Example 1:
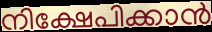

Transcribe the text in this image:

നിക്ഷേപിക്കാൻ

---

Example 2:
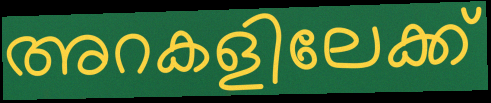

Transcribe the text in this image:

അറകളിലേക്ക്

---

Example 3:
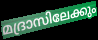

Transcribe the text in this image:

മദ്രാസിലേക്കും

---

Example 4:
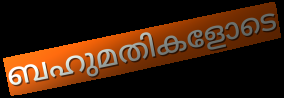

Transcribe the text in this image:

ബഹുമതികളോടെ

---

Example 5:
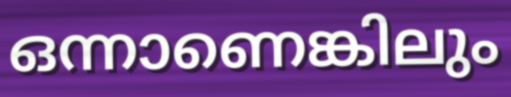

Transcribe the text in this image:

ഒന്നാണെങ്കിലും